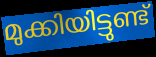
മുക്കിയിട്ടുണ്ട്